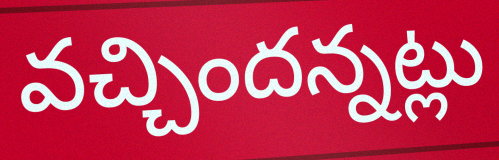
వచ్చిందన్నట్లు